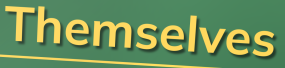
Themselves